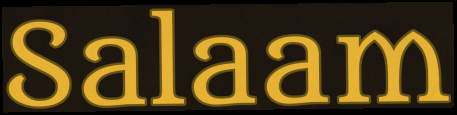
Salaam